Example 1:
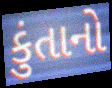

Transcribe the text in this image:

કુંતાનો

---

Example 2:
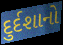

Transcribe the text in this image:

દુર્દશાનો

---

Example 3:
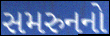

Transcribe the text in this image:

સમરુનનો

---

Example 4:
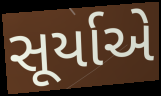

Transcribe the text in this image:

સૂર્યાએ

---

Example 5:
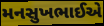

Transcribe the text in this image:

મનસુખભાઈએ